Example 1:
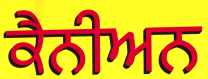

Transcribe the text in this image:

ਕੈਨੀਅਨ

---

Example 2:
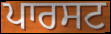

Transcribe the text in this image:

ਪਾਰਸਟ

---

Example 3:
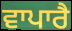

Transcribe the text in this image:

ਵਾਪਾਰੈ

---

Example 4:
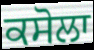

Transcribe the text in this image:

ਕਸੋਲਾ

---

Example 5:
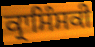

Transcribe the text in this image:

ਕ੍ਰਾਸਿੰਸਕੀ